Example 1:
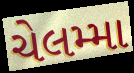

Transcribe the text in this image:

ચેલમ્મા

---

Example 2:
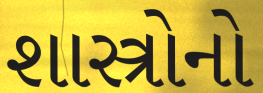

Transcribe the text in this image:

શાસ્ત્રોનો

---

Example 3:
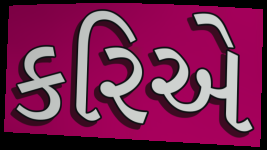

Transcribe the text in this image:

કરિએ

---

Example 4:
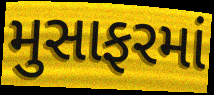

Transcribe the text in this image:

મુસાફરમાં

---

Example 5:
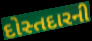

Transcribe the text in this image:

દોસ્તદારની